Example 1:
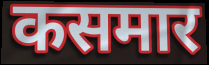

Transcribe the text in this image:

कसमार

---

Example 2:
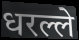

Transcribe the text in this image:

धरल्ले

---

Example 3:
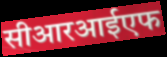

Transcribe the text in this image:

सीआरआईएफ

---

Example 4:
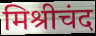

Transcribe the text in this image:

मिश्रीचंद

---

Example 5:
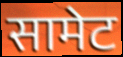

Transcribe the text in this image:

सामेट